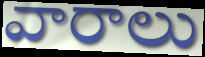
వారాలు